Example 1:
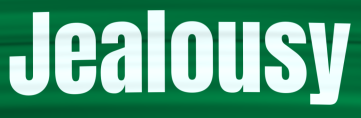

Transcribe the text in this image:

Jealousy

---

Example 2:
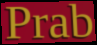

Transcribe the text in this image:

Prab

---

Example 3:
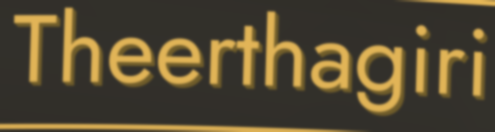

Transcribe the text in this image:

Theerthagiri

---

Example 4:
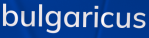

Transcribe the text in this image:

bulgaricus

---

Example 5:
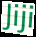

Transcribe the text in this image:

Jiji